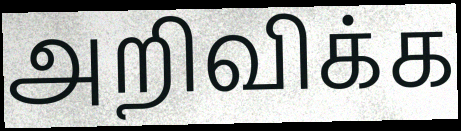
அறிவிக்க